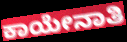
ಕಾಯೇನಾತಿ